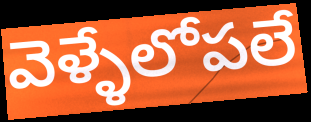
వెళ్ళేలోపలే